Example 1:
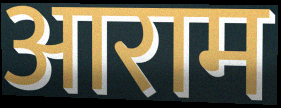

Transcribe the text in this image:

आराम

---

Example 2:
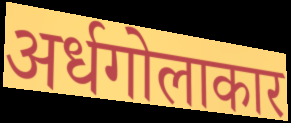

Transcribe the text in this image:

अर्धगोलाकार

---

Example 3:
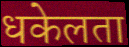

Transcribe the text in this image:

धकेलता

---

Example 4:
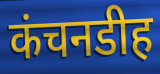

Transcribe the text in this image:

कंचनडीह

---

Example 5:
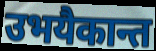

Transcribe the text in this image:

उभयैकान्त